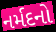
નર્મદનો